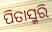
ପିତାସ୍ମରି